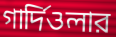
গার্দিওলার